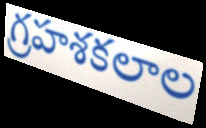
గ్రహశకలాల